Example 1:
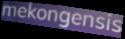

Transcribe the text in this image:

mekongensis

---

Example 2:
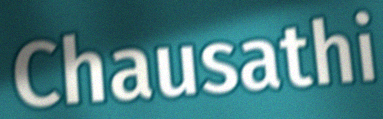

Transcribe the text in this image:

Chausathi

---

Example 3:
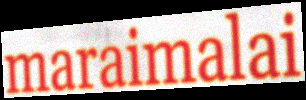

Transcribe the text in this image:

maraimalai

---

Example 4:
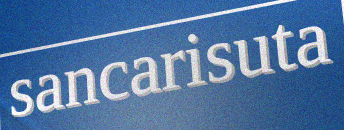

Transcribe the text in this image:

sancarisuta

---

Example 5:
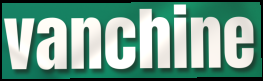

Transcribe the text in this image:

vanchine